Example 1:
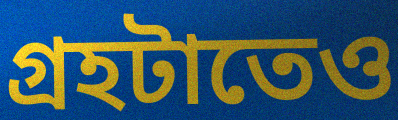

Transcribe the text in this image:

গ্রহটাতেও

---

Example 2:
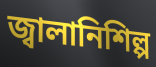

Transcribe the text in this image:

জ্বালানিশিল্প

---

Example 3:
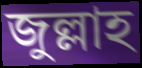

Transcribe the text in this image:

জুল্লাহ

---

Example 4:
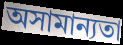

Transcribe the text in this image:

অসামান্যতা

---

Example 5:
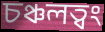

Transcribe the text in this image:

চঞ্চলত্বং